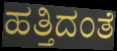
ಹತ್ತಿದಂತೆ